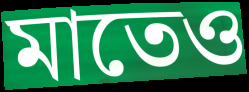
মাতেও